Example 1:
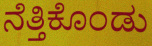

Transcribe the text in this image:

ನೆತ್ತಿಕೊಂಡು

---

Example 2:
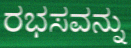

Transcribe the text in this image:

ರಭಸವನ್ನು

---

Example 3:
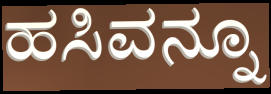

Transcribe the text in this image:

ಹಸಿವನ್ನೂ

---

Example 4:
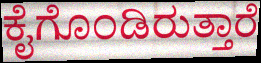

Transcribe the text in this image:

ಕೈಗೊಂಡಿರುತ್ತಾರೆ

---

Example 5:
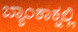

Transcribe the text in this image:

ಬ್ಯಾಂಕಾಕ್ನಲ್ಲಿ